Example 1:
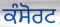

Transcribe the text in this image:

ਕੰਸੋਰਟ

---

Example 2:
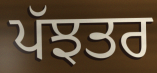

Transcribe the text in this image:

ਪੱਝਤਰ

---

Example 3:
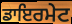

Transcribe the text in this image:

ਡਾਇਰਮੇਟ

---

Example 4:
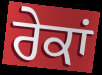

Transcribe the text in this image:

ਰੇਕਾਂ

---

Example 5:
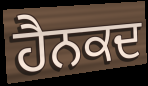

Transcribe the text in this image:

ਹੈਨਕਦ